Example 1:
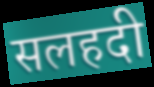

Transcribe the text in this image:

सलहदी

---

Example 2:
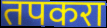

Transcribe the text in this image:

तपकरा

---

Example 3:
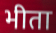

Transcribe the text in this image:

भीता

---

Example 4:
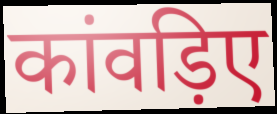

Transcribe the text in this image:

कांवड़िए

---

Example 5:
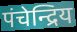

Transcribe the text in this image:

पंचेन्द्रिय